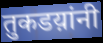
तुकडय़ांनी